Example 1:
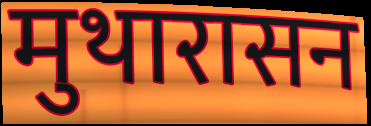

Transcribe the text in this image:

मुथारासन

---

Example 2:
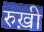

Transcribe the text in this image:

रुख़ी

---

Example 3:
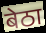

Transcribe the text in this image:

बेठा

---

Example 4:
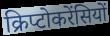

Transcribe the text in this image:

क्रिप्टोकरेंसियों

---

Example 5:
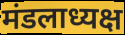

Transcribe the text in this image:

मंडलाध्यक्ष